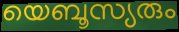
യെബൂസ്യരും